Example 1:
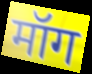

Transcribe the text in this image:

मॉग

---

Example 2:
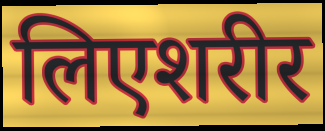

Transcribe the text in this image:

लिएशरीर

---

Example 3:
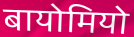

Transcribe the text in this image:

बायोमियो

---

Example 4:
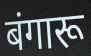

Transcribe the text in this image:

बंगारू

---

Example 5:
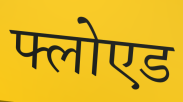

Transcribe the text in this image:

फ्लोएड